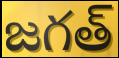
జగత్